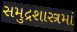
સમુદ્રશાસ્ત્રમાં